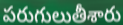
పరుగులుతీశారు